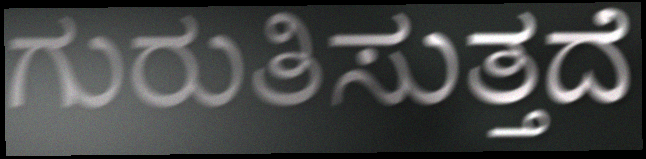
ಗುರುತಿಸುತ್ತದೆ